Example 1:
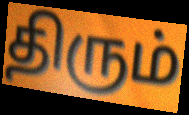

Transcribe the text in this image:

திரும்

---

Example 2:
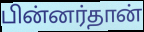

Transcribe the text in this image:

பின்னர்தான்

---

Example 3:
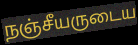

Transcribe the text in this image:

நஞ்சீயருடைய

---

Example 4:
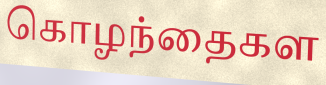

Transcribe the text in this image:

கொழந்தைகள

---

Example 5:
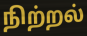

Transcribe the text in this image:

நிற்றல்